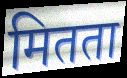
मितता